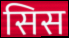
सिस